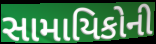
સામાયિકોની